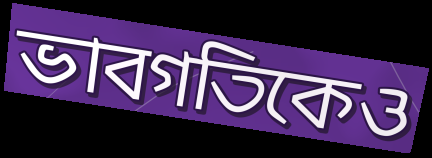
ভাবগতিকেও